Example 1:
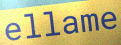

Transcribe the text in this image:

ellame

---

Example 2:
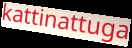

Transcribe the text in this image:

kattinattuga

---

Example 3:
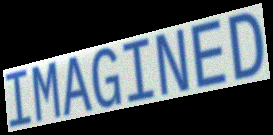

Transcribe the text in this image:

IMAGINED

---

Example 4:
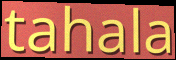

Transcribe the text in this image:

tahala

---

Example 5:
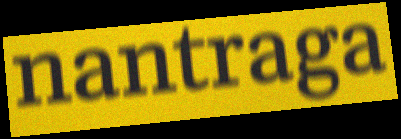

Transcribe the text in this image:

nantraga